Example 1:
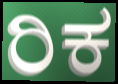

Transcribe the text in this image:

ರಿಕ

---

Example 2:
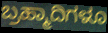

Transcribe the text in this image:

ಬ್ರಹ್ಮಾದಿಗಳೂ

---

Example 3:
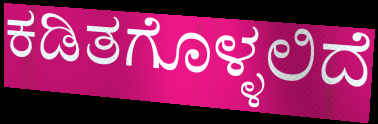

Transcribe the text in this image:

ಕಡಿತಗೊಳ್ಳಲಿದೆ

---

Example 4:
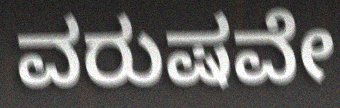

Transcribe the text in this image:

ವರುಷವೇ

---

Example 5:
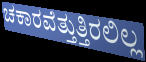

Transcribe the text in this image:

ಚಕಾರವೆತ್ತುತ್ತಿರಲಿಲ್ಲ